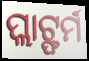
ପ୍ଲାଟ୍ଫର୍ମ